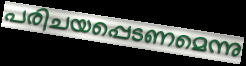
പരിചയപ്പെടണമെന്നു